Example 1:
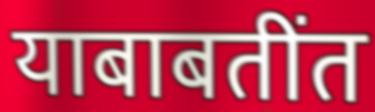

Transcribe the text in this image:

याबाबतींत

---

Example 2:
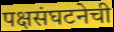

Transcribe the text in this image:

पक्षसंघटनेची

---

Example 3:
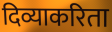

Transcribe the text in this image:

दिव्याकरिता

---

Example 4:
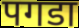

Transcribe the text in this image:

पगडा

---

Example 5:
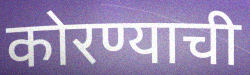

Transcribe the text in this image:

कोरण्याची